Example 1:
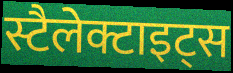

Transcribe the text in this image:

स्टैलेक्टाइट्स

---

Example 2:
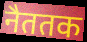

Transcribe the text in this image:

नैततक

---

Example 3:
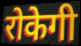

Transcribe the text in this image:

रोकेगी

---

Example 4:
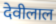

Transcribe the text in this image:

देवीलाल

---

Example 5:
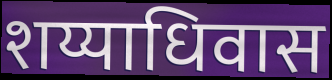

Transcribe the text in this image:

शय्याधिवास